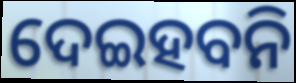
ଦେଇହବନି